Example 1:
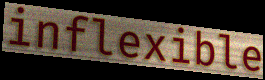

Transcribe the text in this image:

inflexible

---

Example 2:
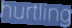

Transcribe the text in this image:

hurtling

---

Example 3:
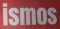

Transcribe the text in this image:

ismos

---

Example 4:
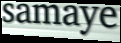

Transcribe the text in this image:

samaye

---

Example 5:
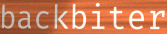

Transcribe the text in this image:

backbiter